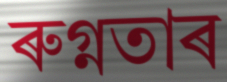
ৰুগ্নতাৰ